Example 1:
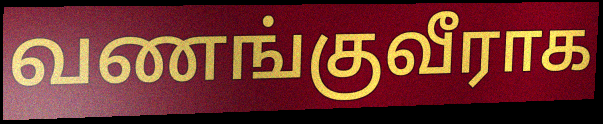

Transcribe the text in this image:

வணங்குவீராக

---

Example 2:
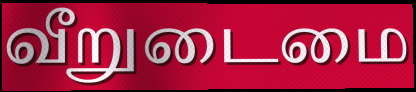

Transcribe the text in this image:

வீறுடைமை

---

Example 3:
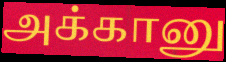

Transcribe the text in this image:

அக்கானு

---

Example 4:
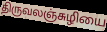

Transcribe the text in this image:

திருவலஞ்சுழியை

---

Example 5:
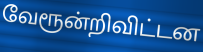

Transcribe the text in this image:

வேரூன்றிவிட்டன